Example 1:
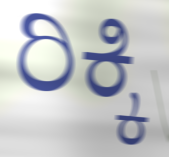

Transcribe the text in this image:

ರಿಕ್ಕಿ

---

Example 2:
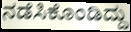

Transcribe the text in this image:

ನಡೆಸಿಕೊಂಡಿದ್ದು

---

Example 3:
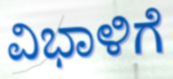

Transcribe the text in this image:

ವಿಭಾಳಿಗೆ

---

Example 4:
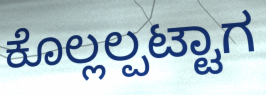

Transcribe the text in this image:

ಕೊಲ್ಲಲ್ಪಟ್ಟಾಗ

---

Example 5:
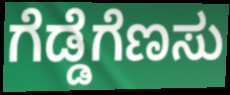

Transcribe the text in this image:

ಗೆಡ್ಡೆಗೆಣಸು